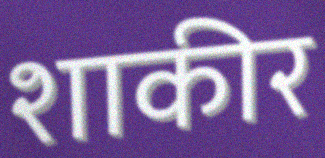
शाकीर